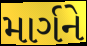
માર્ગને